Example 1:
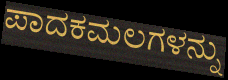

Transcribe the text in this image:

ಪಾದಕಮಲಗಳನ್ನು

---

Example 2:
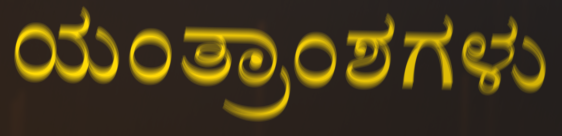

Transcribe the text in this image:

ಯಂತ್ರಾಂಶಗಳು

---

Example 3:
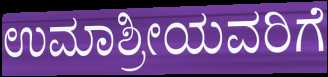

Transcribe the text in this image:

ಉಮಾಶ್ರೀಯವರಿಗೆ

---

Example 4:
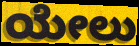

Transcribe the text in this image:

ಯೇಲು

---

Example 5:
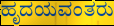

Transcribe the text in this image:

ಹೃದಯವಂತರು